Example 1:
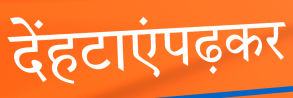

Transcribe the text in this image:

देंहटाएंपढ़कर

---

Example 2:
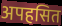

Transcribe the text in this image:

अपहसित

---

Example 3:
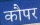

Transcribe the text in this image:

कौपर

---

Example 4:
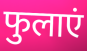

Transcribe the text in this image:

फुलाएं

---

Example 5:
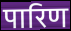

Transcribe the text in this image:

पारिण